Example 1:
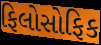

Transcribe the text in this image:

ફિલોસોફિક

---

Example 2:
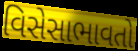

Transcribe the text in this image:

વિસેસાભાવતો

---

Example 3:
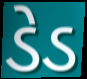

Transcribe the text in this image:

ડેડ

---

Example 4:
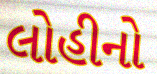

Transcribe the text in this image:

લોહીનો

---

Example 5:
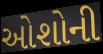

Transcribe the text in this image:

ઓશોની